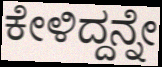
ಕೇಳಿದ್ದನ್ನೇ